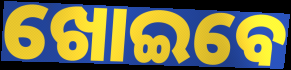
ଖୋଇବେ